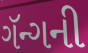
ગૅન્ગની